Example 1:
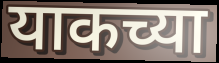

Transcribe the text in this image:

याकच्या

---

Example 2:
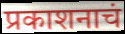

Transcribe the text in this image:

प्रकाशनाचं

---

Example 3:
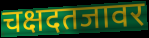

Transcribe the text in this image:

चक्षदतजावर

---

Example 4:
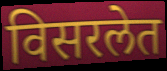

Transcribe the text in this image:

विसरलेत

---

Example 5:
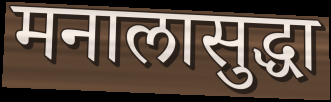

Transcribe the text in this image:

मनालासुद्धा